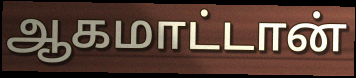
ஆகமாட்டான்